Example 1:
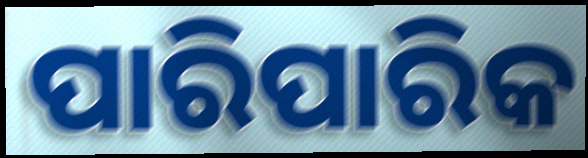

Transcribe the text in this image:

ପାରିପାରିକ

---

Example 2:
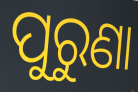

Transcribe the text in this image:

ପୁରୁଣା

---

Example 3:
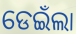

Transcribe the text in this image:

ଡେଇଁଲା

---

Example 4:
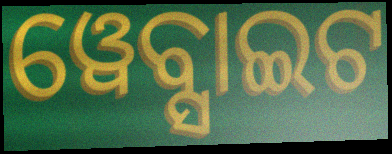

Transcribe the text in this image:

ୱେବ୍ସାଇଟ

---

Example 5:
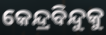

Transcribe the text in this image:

କେନ୍ଦ୍ରବିନ୍ଦୁକୁ